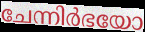
ചേന്നിർഭയോ